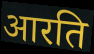
आरति